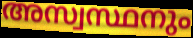
അസ്വസ്ഥനും